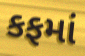
કફમાં